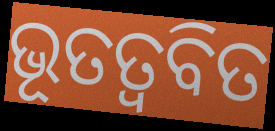
ଭୂତତ୍ଵବିତ